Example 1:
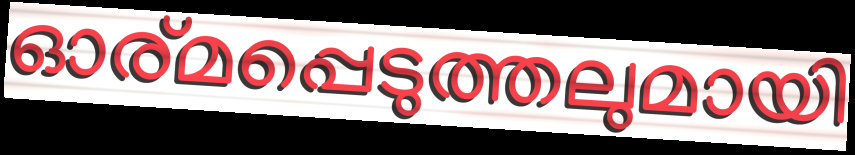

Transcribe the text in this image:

ഓര്മപ്പെടുത്തലുമായി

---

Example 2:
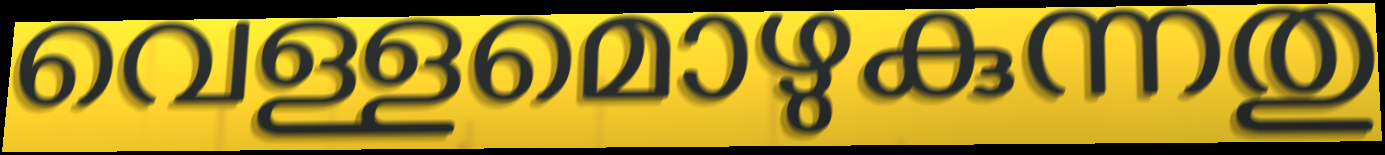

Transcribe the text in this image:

വെള്ളമൊഴുകുന്നതു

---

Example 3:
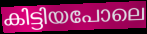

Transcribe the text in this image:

കിട്ടിയപോലെ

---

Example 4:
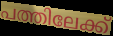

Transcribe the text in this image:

പത്തിലേക്ക്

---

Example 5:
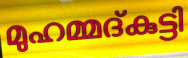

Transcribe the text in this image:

മുഹമ്മദ്കുട്ടി